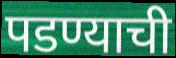
पडण्याची